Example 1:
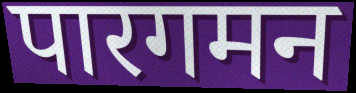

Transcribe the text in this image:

पारगमन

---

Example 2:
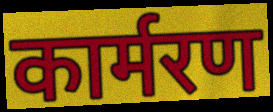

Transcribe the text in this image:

कार्मरण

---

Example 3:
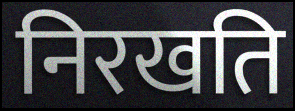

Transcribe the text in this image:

निरखति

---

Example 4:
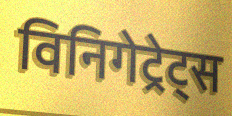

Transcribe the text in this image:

विनिगेट्रेट्स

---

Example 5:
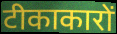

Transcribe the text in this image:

टीकाकारों